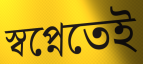
স্বপ্নেতেই